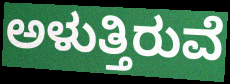
ಅಳುತ್ತಿರುವೆ